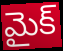
మైక్